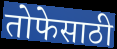
तोफेसाठी